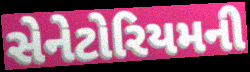
સેનેટોરિયમની